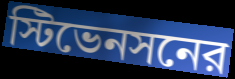
স্টিভেনসনের